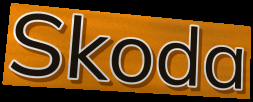
Skoda